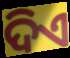
ଦିଏ